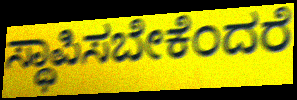
ಸ್ಥಾಪಿಸಬೇಕೆಂದರೆ